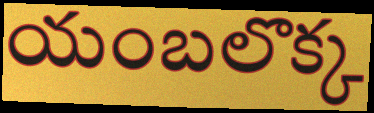
యంబలొక్క